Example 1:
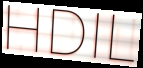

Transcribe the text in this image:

HDIL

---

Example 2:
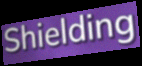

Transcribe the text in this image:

Shielding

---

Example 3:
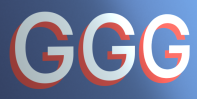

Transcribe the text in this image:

GGG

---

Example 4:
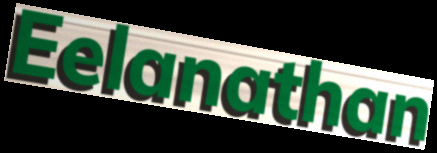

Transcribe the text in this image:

Eelanathan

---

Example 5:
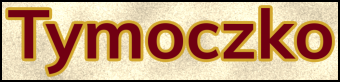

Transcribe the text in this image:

Tymoczko